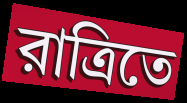
রাত্রিতে